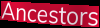
Ancestors